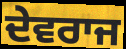
ਦੇਵਰਾਜ